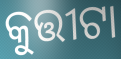
କୁତ୍ତୀଟା